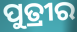
ପୁତ୍ରୀର